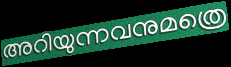
അറിയുന്നവനുമത്രെ